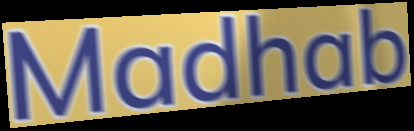
Madhab